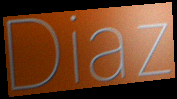
Diaz